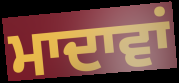
ਮਾਦਾਵਾਂ